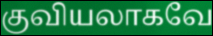
குவியலாகவே